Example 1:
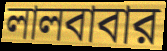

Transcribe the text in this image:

লালবাবার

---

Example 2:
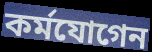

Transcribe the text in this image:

কর্মযোগেন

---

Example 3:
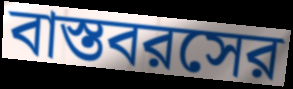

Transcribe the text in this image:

বাস্তবরসের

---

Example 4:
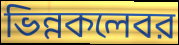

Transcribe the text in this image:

ভিন্নকলেবর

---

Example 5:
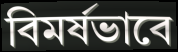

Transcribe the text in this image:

বিমর্ষভাবে